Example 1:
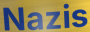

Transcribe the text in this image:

Nazis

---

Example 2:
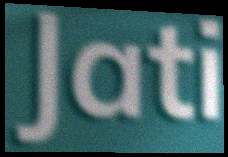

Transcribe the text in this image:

Jati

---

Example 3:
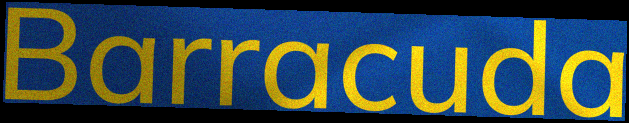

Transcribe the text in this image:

Barracuda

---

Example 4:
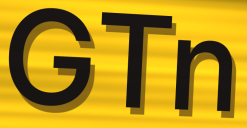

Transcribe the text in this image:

GTn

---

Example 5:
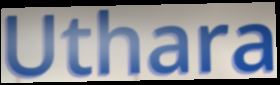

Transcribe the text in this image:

Uthara